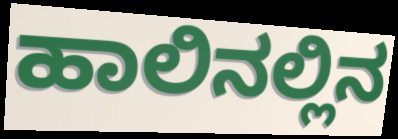
ಹಾಲಿನಲ್ಲಿನ